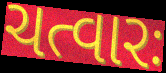
ચત્વારઃ